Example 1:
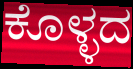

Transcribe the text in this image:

ಕೊಳ್ಳದ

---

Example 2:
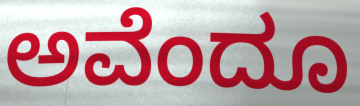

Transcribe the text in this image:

ಅವೆಂದೂ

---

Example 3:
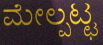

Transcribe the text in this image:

ಮೇಲ್ಪಟ್ಟ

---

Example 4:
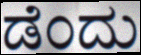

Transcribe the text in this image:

ಡೆಂದು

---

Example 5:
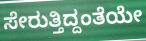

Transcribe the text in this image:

ಸೇರುತ್ತಿದ್ದಂತೆಯೇ